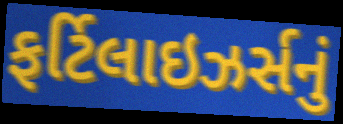
ફર્ટિલાઇઝર્સનું